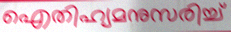
ഐതിഹ്യമനുസരിച്ച്